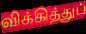
விக்கித்துப்